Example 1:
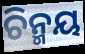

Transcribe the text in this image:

ଚିନ୍ମୟ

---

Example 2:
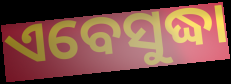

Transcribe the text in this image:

ଏବେସୁଦ୍ଧା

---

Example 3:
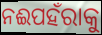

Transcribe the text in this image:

ନଈପହଁରାକୁ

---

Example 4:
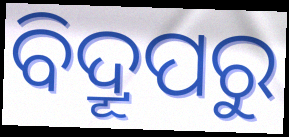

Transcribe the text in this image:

ବିଦ୍ରୂପରୁ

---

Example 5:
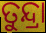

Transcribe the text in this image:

ତୁନ୍ଦ୍ରା